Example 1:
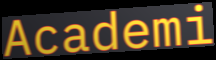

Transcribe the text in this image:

Academi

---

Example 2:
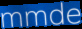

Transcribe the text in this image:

mmde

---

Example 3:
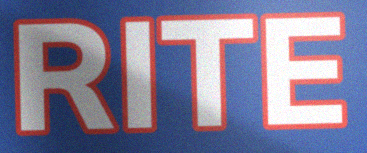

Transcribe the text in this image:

RITE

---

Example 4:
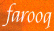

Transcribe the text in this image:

farooq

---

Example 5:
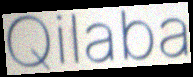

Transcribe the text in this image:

Qilaba